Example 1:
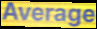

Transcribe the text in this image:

Average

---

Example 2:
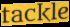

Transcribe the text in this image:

tackle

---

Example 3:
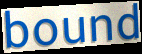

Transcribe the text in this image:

bound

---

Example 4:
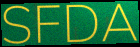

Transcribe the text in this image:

SFDA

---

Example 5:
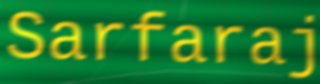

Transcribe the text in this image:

Sarfaraj